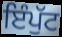
ਇੰਪੁੱਟ